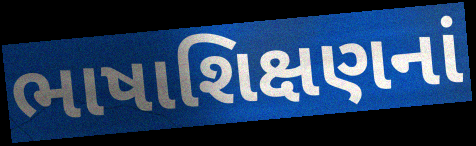
ભાષાશિક્ષણનાં